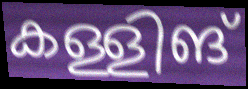
കള്ളിങ്